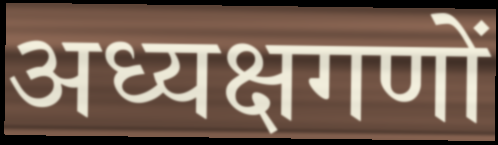
अध्यक्षगणों